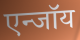
एन्जॉय